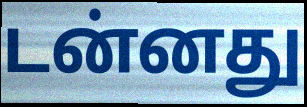
டன்னது